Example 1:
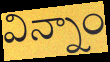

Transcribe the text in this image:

విన్నాం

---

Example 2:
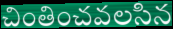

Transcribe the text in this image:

చింతించవలసిన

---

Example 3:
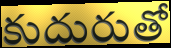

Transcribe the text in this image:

కుదురుతో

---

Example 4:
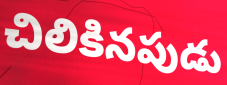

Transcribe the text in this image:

చిలికినపుడు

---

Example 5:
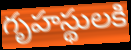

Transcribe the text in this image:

గృహస్థులకి